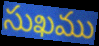
సుఖము